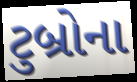
ટુબ્રોના